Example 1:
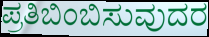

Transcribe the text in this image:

ಪ್ರತಿಬಿಂಬಿಸುವುದರ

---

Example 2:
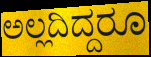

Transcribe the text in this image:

ಅಲ್ಲದಿದ್ದರೂ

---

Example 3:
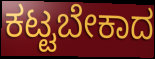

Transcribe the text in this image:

ಕಟ್ಟಬೇಕಾದ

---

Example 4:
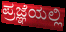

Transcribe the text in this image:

ಪ್ರಜ್ಞೆಯಲ್ಲಿ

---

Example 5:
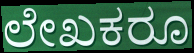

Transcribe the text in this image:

ಲೇಖಕರೂ